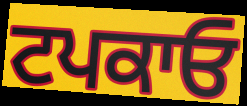
ਟਪਕਾਓ